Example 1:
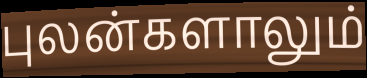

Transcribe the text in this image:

புலன்களாலும்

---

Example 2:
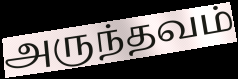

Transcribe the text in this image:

அருந்தவம்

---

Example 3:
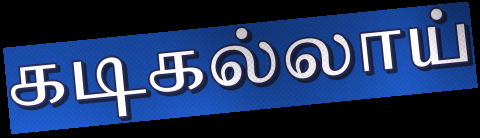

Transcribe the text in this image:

கடிகல்லாய்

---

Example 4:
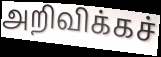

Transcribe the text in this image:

அறிவிக்கச்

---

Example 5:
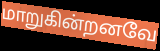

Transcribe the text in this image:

மாறுகின்றனவே